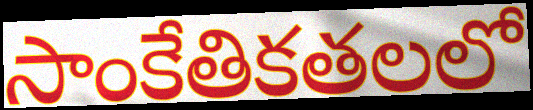
సాంకేతికతలలో